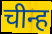
चीन्ह